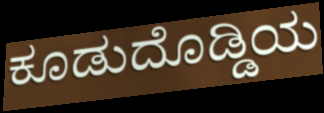
ಕೂಡುದೊಡ್ಡಿಯ